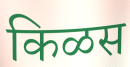
किळस